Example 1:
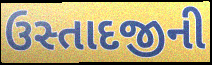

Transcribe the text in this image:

ઉસ્તાદજીની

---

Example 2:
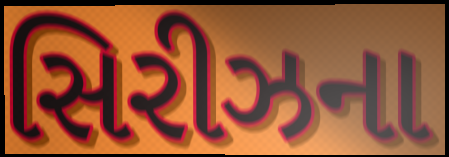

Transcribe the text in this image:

સિરીઝના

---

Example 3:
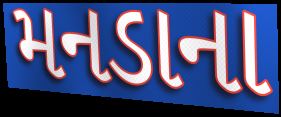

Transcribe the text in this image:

મનડાના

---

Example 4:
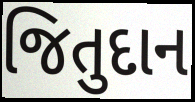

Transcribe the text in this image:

જિતુદાન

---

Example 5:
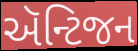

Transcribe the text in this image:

ઍન્ટિજન